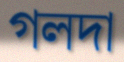
গলদা